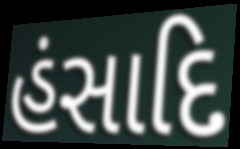
હંસાદિ